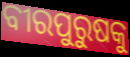
ବୀରପୁରୁଷକୁ